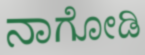
ನಾಗೋಡಿ